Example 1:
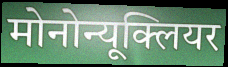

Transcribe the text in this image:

मोनोन्यूक्लियर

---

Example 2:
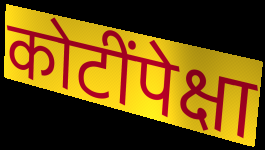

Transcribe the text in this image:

कोटींपेक्षा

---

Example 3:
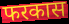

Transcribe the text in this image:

फरकास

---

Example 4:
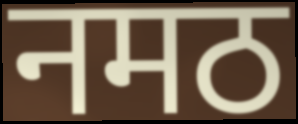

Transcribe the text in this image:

नमठ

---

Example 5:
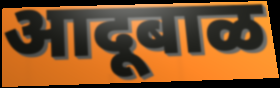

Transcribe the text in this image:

आदूबाळ